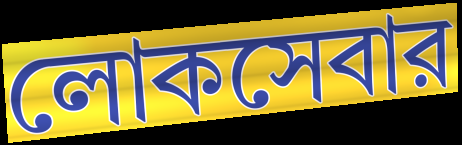
লোকসেবার